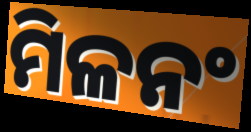
ମିଳନଂ